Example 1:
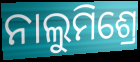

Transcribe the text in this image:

ନାଲୁମିଶ୍ରେ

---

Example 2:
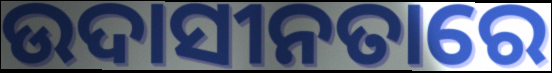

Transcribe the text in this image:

ଉଦାସୀନତାରେ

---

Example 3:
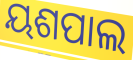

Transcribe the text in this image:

ୟଶପାଲ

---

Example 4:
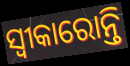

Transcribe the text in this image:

ସ୍ଵୀକାରୋନ୍ତି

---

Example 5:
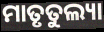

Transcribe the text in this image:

ମାତୃତୁଲ୍ୟା